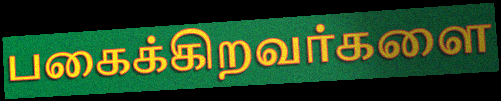
பகைக்கிறவர்களை